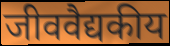
जीववैद्यकीय